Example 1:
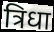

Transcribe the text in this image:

त्रिधा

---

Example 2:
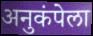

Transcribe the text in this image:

अनुकंपेला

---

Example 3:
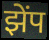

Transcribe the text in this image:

झेंप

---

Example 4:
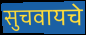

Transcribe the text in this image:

सुचवायचे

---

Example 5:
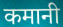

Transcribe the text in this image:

कमानी